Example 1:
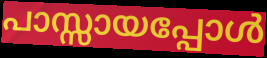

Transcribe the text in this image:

പാസ്സായപ്പോൾ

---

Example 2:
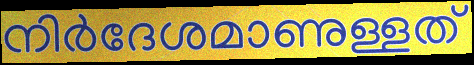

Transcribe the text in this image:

നിർദേശമാണുള്ളത്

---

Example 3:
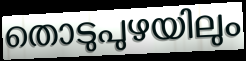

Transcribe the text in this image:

തൊടുപുഴയിലും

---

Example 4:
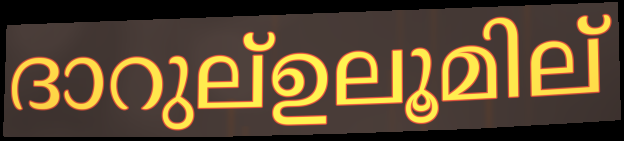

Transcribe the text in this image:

ദാറുല്ഉലൂമില്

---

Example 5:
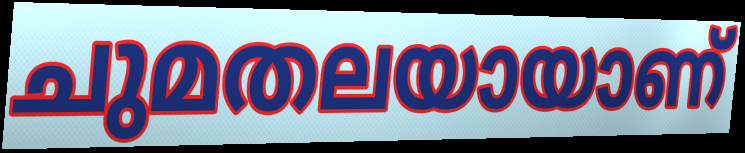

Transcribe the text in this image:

ചുമതലയായാണ്